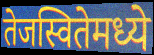
तेजस्वितेमध्ये